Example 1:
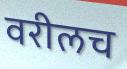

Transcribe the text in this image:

वरीलच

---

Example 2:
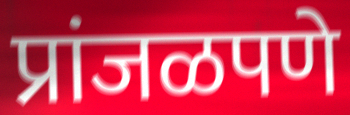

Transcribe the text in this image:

प्रांजळपणे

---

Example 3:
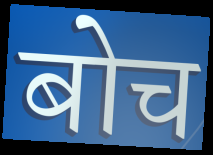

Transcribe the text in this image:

बोच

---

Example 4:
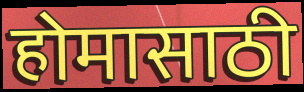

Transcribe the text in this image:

होमासाठी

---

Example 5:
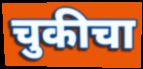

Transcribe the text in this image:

चुकीचा